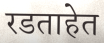
रडताहेत